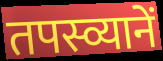
तपस्व्यानें